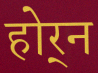
होर्न